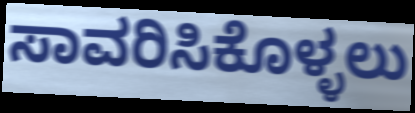
ಸಾವರಿಸಿಕೊಳ್ಳಲು